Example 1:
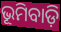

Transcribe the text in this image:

ଭୂମିବାଡ଼ି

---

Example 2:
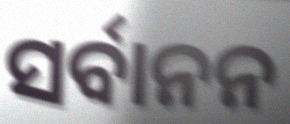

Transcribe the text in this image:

ସର୍ବାନନ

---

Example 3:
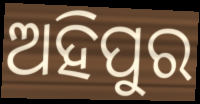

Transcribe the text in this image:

ଅହିପୁର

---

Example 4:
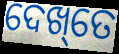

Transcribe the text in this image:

ଦେଖ୍‌ତେ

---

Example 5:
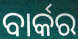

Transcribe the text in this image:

ବାର୍କର